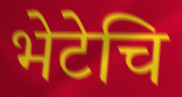
भेटेचि